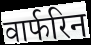
वार्फरिन